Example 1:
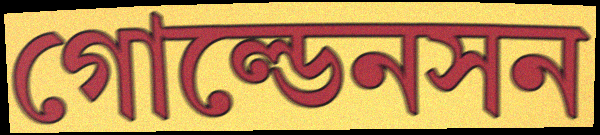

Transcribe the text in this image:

গোল্ডেনসন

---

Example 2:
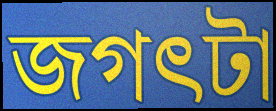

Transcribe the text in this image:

জগৎটা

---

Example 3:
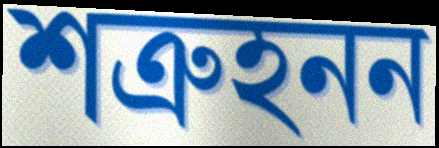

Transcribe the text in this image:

শত্রুহনন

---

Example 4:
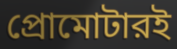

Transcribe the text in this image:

প্রোমোটারই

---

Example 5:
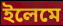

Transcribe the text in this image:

ইলেমে